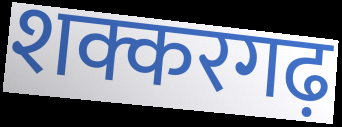
शक्करगढ़